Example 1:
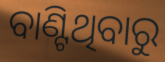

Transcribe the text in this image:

ବାଣ୍ଟିଥିବାରୁ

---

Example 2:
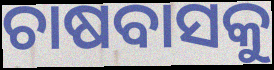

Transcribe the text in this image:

ଚାଷବାସକୁ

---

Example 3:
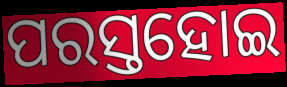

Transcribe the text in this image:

ପରସ୍ତହୋଇ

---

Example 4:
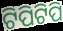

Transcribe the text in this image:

ଟିପିଟିପି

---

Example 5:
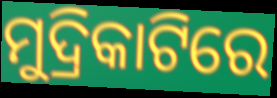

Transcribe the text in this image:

ମୁଦ୍ରିକାଟିରେ